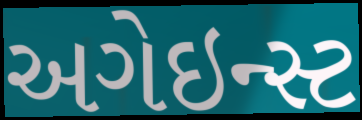
અગેઇન્સ્ટ